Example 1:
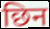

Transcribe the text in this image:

छिन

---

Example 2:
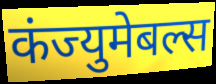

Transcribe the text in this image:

कंज्युमेबल्स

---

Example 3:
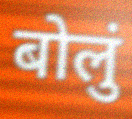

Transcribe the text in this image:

बोलुं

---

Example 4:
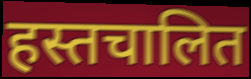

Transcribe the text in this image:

हस्तचालित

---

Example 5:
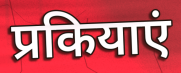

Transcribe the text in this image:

प्रकियाएं